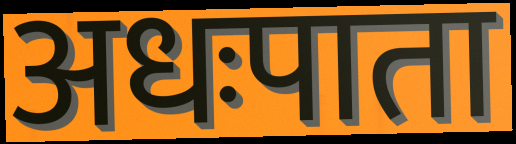
अधःपाता